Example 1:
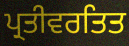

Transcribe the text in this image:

ਪ੍ਰਤੀਵਰਤਿਤ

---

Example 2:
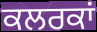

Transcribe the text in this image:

ਕਲਰਕਾਂ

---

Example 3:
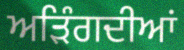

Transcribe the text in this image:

ਅੜਿੰਗਦੀਆਂ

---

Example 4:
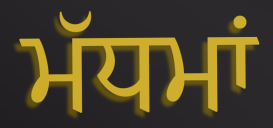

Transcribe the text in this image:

ਮੱਧਮਾਂ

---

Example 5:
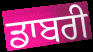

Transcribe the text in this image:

ਡਾਬਰੀ